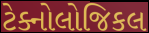
ટેક્નોલોજિકલ